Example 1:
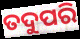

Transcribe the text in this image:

ତଦୁପରି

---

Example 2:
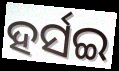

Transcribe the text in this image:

ହର୍ସଇ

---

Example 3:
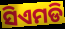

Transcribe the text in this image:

ସିଏମଡି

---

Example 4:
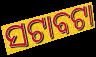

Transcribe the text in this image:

ସଟାବଟା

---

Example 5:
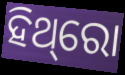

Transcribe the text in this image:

ହିଥ୍‌ରୋ